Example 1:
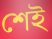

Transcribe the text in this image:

শেই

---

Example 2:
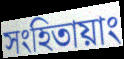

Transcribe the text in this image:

সংহিতায়াং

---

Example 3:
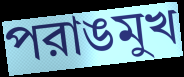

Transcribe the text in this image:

পরাঙমুখ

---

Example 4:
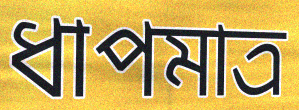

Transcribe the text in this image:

ধাপমাত্র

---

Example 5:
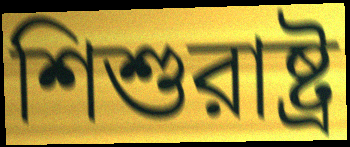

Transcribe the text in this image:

শিশুরাষ্ট্র